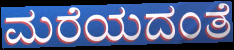
ಮರೆಯದಂತೆ